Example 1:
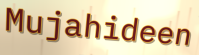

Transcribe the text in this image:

Mujahideen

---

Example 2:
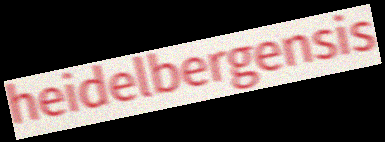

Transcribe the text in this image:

heidelbergensis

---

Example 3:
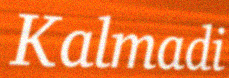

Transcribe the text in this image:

Kalmadi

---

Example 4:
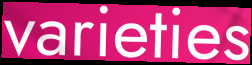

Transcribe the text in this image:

varieties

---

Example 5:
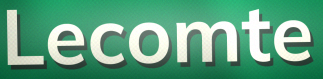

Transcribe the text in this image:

Lecomte